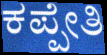
ಕಪ್ಪೇತಿ